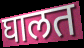
घालत